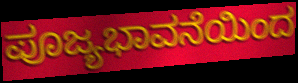
ಪೂಜ್ಯಭಾವನೆಯಿಂದ